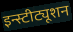
इन्स्टीट्यूशन